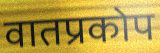
वातप्रकोप